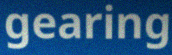
gearing